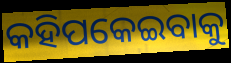
କହିପକେଇବାକୁ